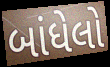
બાંધેલો